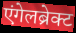
एंगेलब्रेक्ट